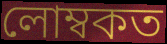
লোম্বকত